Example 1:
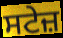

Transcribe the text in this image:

ਸਟੇਜ਼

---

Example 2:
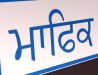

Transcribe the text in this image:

ਮਾਫਿਕ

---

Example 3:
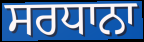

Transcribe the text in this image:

ਸਰਧਾਨਾ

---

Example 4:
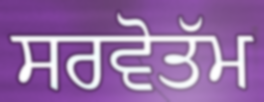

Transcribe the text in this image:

ਸਰਵੋਤੱਮ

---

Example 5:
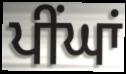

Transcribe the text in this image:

ਪੀਂਘਾਂ